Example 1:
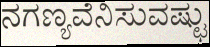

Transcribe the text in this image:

ನಗಣ್ಯವೆನಿಸುವಷ್ಟು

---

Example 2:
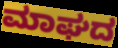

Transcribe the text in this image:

ಮಾಘದ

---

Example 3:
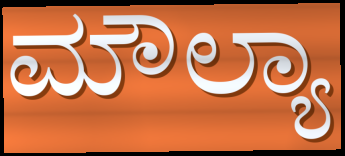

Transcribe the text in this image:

ಮೌಲ್ಯಾ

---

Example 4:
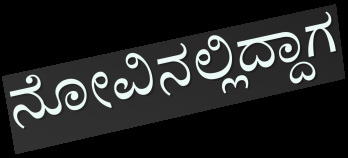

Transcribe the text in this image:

ನೋವಿನಲ್ಲಿದ್ದಾಗ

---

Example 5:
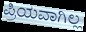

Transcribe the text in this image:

ಪ್ರಿಯವಾಗಿಲ್ಲ